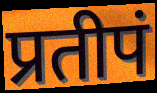
प्रतीपं